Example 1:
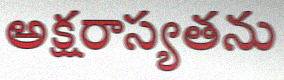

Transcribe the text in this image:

అక్షరాస్యతను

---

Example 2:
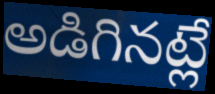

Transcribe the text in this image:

అడిగినట్లే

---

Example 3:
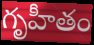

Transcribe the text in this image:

గృహీతం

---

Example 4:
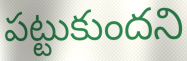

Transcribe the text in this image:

పట్టుకుందని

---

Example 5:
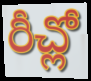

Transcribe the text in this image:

రీచ్లో